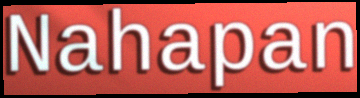
Nahapan